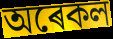
অৰেকল